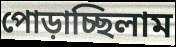
পোড়াচ্ছিলাম